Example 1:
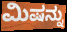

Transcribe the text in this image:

ಮಿಷನ್ನು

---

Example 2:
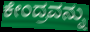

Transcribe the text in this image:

ಕೇಂದ್ರವನ್ನು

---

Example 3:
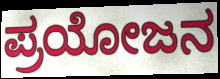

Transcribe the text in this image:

ಪ್ರಯೋಜನ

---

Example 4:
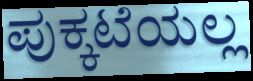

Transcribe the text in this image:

ಪುಕ್ಕಟೆಯಲ್ಲ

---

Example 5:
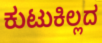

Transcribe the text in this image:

ಕುಟುಕಿಲ್ಲದ